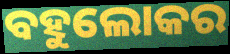
ବହୁଲୋକର